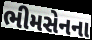
ભીમસેનના